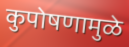
कुपोषणामुळे